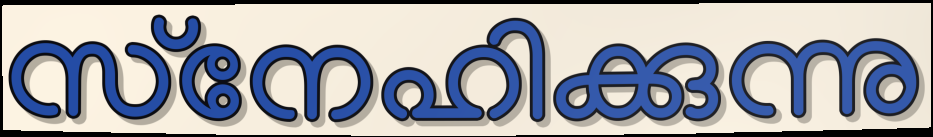
സ്‌നേഹിക്കുന്നു